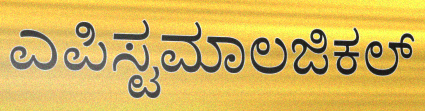
ಎಪಿಸ್ಟಮಾಲಜಿಕಲ್